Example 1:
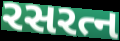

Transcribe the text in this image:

રસરત્ન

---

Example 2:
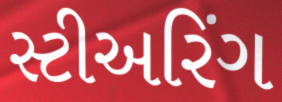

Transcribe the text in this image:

સ્ટીઅરિંગ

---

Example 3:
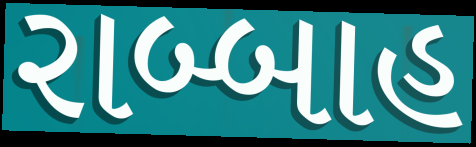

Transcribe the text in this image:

રાબ્બાહ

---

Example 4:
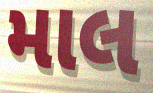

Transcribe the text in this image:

માલ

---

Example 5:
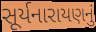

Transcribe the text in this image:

સૂર્યનારાયણનું